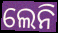
ଲେନି